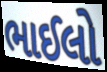
ભાઈલો